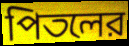
পিতলের